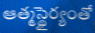
ఆత్మస్థైర్యంతో